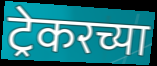
ट्रेकरच्या